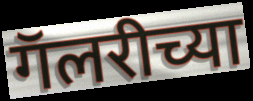
गॅलरीच्या